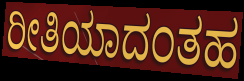
ರೀತಿಯಾದಂತಹ